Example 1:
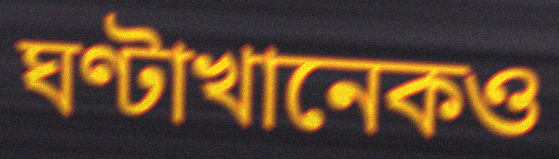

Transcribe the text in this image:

ঘণ্টাখানেকও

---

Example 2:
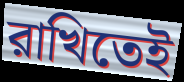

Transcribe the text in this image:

রাখিতেই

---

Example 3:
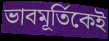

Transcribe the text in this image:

ভাবমূর্তিকেই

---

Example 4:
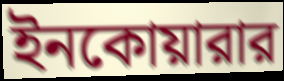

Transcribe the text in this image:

ইনকোয়ারার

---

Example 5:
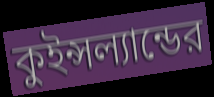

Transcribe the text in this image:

কুইন্সল্যান্ডের